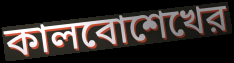
কালবোশেখের